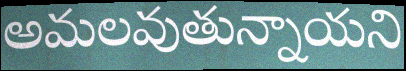
అమలవుతున్నాయని